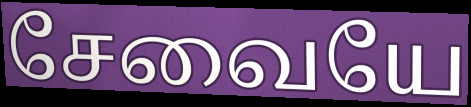
சேவையே